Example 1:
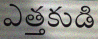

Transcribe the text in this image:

ఎత్తకుడి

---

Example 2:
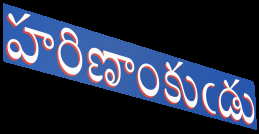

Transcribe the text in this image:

హరిణాంకుఁడు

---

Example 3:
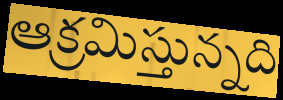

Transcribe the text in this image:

ఆక్రమిస్తున్నది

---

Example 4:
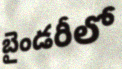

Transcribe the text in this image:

బైండరీలో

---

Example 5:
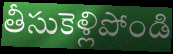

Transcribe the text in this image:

తీసుకెళ్లిపోండి